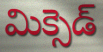
మిక్సెడ్